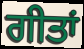
ਗੀਤਾਂ